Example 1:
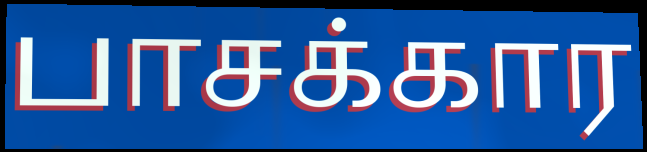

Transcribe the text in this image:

பாசக்கார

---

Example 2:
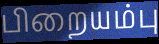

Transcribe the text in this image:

பிறையம்பு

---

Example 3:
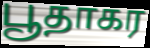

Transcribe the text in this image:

பூதாகர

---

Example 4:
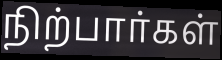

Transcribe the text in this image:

நிற்பார்கள்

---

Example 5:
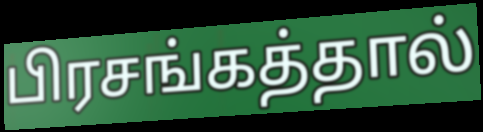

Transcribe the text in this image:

பிரசங்கத்தால்